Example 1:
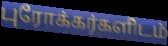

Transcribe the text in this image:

புரோக்கர்களிடம்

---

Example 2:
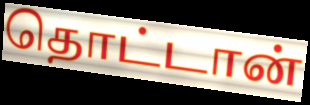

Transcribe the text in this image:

தொட்டான்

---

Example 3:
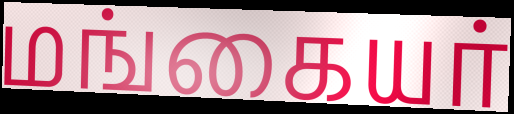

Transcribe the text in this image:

மங்கையர்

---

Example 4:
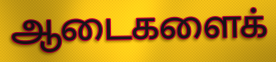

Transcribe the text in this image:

ஆடைகளைக்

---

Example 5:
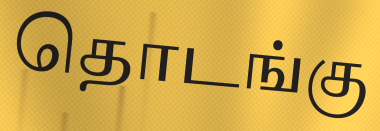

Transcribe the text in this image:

தொடங்கு